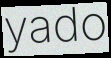
yado